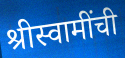
श्रीस्वामींची